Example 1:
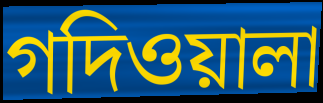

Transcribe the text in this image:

গদিওয়ালা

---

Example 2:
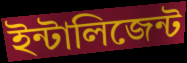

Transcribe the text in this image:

ইন্টালিজেন্ট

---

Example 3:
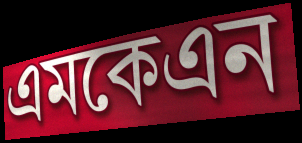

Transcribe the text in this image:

এমকেএন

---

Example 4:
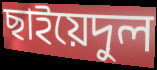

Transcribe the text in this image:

ছাইয়েদুল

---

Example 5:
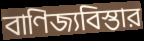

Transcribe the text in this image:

বাণিজ্যবিস্তার